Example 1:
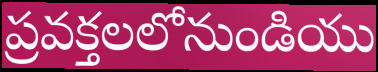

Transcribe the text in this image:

ప్రవక్తలలోనుండియు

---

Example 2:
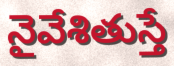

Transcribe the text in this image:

నైవేశితుస్తే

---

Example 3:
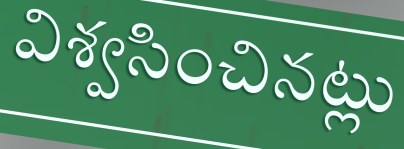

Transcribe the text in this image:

విశ్వసించినట్లు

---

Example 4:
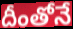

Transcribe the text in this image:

దీంతోనే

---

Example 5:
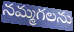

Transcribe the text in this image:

నమ్మగలను